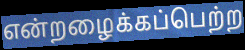
என்றழைக்கப்பெற்ற